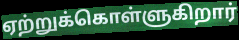
ஏற்றுக்கொள்ளுகிறார்